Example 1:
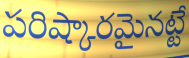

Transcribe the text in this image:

పరిష్కారమైనట్టే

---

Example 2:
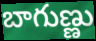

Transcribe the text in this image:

బాగుణ్ణు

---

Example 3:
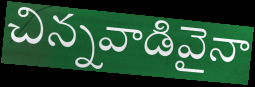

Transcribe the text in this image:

చిన్నవాడివైనా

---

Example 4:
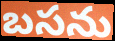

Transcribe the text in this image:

బసను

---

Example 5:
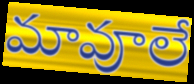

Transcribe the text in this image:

మావూలే